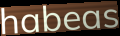
habeas